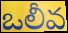
ఒలీవ